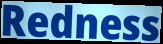
Redness